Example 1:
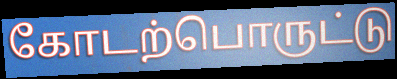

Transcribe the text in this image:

கோடற்பொருட்டு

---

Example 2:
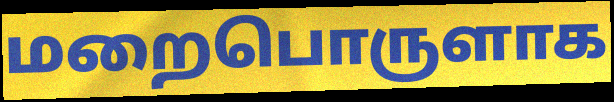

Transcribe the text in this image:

மறைபொருளாக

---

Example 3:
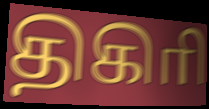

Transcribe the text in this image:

திகிரி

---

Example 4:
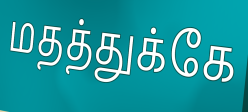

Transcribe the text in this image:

மதத்துக்கே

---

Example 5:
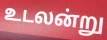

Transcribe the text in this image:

உடலன்று